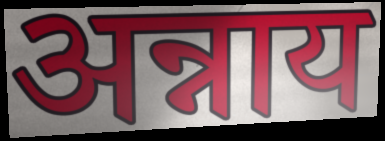
अन्नाय